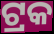
ଟ୍ରକ